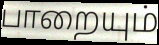
பாறையும்